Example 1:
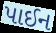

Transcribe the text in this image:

પાઈન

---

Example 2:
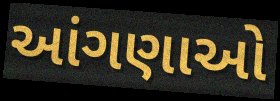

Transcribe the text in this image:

આંગણાઓ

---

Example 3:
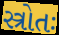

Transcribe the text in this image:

સ્ત્રોતઃ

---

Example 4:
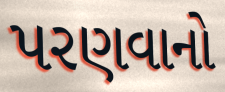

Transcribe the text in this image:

પરણવાનો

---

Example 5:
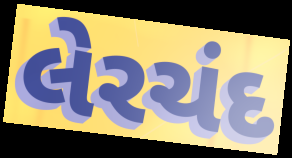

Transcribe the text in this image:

લેરચંદ